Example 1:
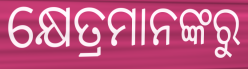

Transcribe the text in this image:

କ୍ଷେତ୍ରମାନଙ୍କରୁ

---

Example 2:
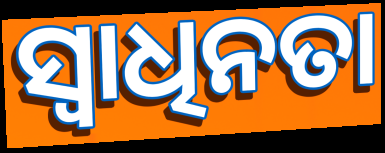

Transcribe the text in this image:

ସ୍ୱାଧିନତା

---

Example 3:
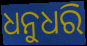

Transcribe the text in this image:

ଧନୁଧରି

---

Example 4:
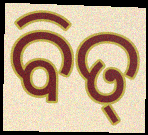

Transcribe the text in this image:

ବିତ୍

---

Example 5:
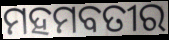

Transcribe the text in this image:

ମହମବତୀର